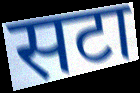
सटा